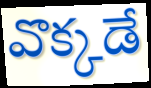
వొక్కడే